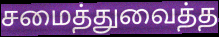
சமைத்துவைத்த